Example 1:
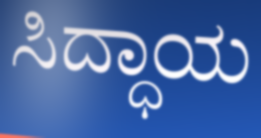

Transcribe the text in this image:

ಸಿದ್ಧಾಯ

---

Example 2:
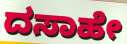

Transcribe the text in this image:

ದಸಾಹೇ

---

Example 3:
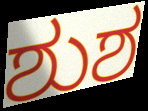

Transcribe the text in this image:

ಶುಶ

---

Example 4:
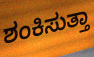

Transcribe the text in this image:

ಶಂಕಿಸುತ್ತಾ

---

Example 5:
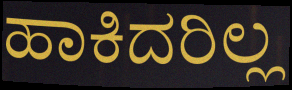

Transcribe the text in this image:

ಹಾಕಿದರಿಲ್ಲ